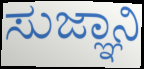
ಸುಜ್ಞಾನಿ